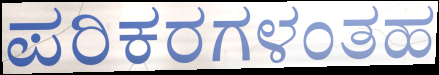
ಪರಿಕರಗಳಂತಹ